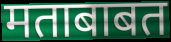
मताबाबत